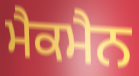
ਮੈਕਮੈਨ